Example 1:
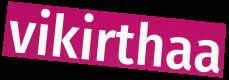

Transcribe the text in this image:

vikirthaa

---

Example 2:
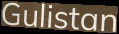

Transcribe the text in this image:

Gulistan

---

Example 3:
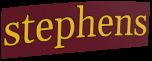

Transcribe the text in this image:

stephens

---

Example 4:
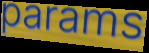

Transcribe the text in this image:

params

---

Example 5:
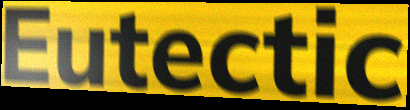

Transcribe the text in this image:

Eutectic